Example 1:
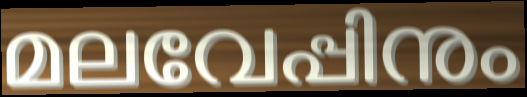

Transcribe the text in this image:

മലവേപ്പിനും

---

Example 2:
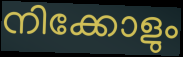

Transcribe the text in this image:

നിക്കോളും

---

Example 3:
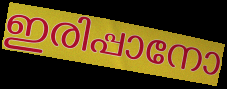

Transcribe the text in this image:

ഇരിപ്പാനോ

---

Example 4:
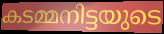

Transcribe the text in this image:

കടമ്മനിട്ടയുടെ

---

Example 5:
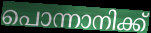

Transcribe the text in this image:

പൊന്നാനിക്ക്